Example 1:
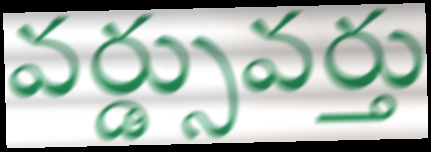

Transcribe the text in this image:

వర్డ్సువర్తు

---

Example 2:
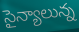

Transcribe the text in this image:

సైన్యాలున్న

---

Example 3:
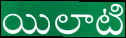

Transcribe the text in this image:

యిలాటి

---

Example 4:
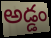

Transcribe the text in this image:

అడ్డం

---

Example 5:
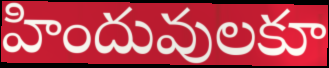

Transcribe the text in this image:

హిందువులకూ